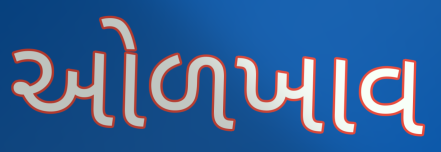
ઓળખાવ